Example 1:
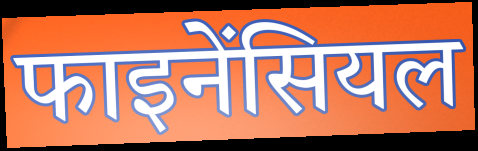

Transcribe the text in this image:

फाइनेंसियल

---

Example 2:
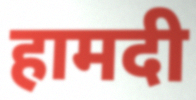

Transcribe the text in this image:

हामदी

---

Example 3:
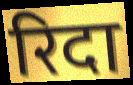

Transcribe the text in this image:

रिदा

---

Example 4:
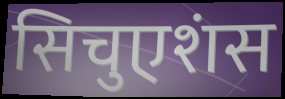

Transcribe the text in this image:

सिचुएशंस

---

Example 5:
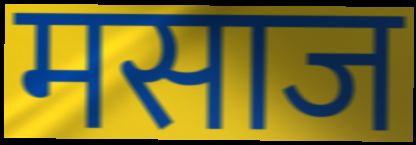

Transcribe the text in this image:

मसाज